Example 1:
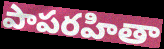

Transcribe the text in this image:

పాపరహితా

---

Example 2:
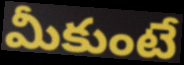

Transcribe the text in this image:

మీకుంటే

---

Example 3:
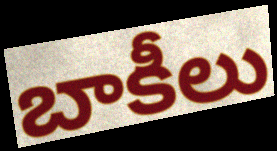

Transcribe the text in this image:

బాకీలు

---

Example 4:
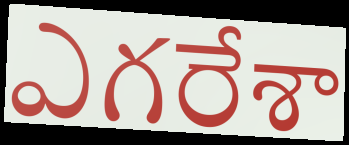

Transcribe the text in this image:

ఎగరేశా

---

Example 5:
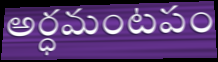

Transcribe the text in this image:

అర్ధమంటపం